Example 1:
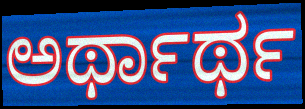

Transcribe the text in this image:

ಅರ್ಥಾರ್ಥ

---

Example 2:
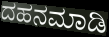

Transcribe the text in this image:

ದಹನಮಾಡಿ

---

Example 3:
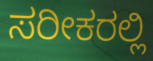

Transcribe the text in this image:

ಸರೀಕರಲ್ಲಿ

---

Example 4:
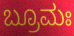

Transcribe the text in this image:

ಬ್ರೂಮಃ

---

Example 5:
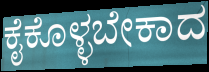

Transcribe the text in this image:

ಕೈಕೊಳ್ಳಬೇಕಾದ